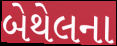
બેથેલના